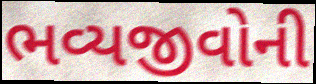
ભવ્યજીવોની